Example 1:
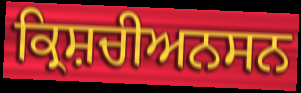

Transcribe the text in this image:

ਕ੍ਰਿਸ਼ਚੀਅਨਸਨ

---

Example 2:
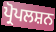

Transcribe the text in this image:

ਪ੍ਰੋਪਲਸ਼ਨ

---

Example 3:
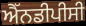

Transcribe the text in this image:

ਐੱਨਡੀਪੀਸੀ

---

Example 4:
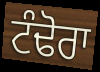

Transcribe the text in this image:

ਟੰਢੋਰਾ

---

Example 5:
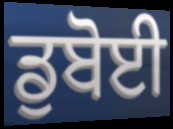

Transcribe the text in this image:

ਡੁਬੋਈ